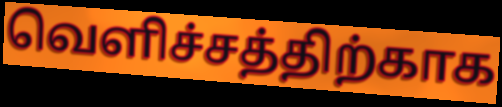
வெளிச்சத்திற்காக